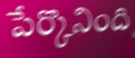
పేర్కొనింది